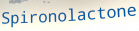
Spironolactone